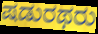
ಷಡುರಥರು